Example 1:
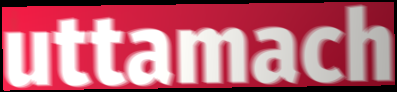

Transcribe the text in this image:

uttamach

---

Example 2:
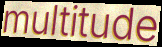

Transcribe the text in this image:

multitude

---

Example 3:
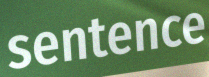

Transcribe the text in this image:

sentence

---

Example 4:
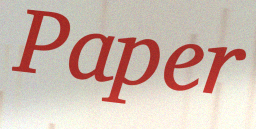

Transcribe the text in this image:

Paper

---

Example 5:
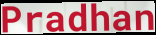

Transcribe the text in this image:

Pradhan